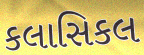
કલાસિકલ